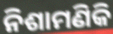
ନିଶାମଣିକି